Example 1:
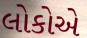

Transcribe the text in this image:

લોકોએ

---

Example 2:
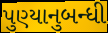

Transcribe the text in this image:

પુણ્યાનુબન્ધી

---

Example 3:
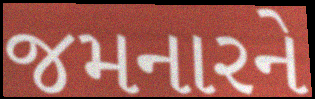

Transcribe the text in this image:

જમનારને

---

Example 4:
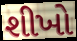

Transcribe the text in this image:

શીખો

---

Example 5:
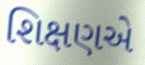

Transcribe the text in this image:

શિક્ષણએ